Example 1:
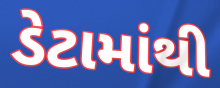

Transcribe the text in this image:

ડેટામાંથી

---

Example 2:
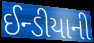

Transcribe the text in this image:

ઈન્ડીયાની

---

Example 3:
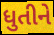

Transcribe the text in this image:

ધુતીને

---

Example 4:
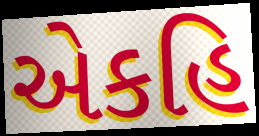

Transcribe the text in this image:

એકહિ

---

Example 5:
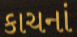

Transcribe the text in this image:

કાચનાં